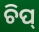
ଚିପ୍